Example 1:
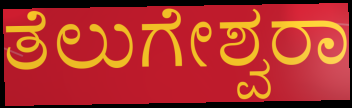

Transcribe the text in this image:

ತೆಲುಗೇಶ್ವರಾ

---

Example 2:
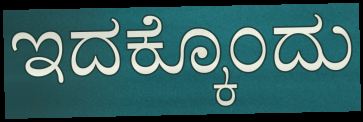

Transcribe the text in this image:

ಇದಕ್ಕೊಂದು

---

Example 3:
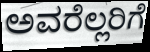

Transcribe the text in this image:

ಅವರೆಲ್ಲರಿಗೆ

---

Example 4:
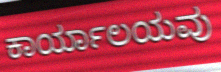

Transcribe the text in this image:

ಕಾರ್ಯಾಲಯವು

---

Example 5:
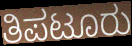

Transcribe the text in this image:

ತಿಪಟೂರು